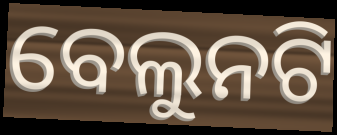
ବେଲୁନଟି